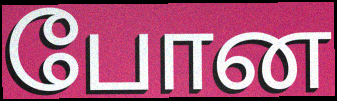
போன